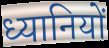
ध्यानियों